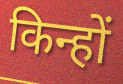
किन्हों